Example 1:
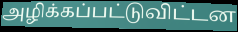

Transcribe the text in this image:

அழிக்கப்பட்டுவிட்டன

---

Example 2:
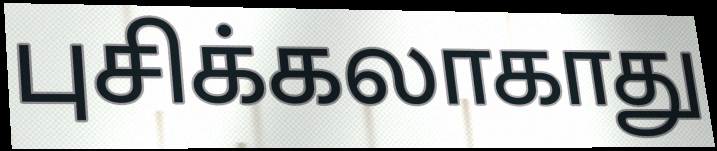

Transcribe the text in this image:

புசிக்கலாகாது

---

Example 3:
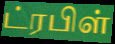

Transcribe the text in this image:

ட்ரபிள்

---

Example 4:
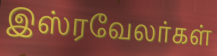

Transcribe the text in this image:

இஸ்ரவேலர்கள்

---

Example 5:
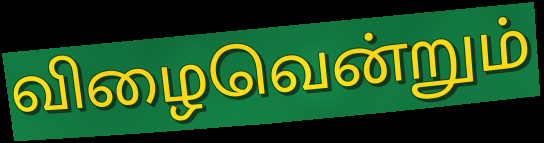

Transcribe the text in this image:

விழைவென்றும்